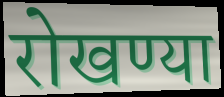
रोखण्या